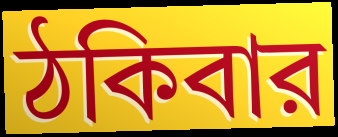
ঠকিবার